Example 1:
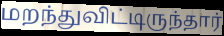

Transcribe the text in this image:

மறந்துவிட்டிருந்தார்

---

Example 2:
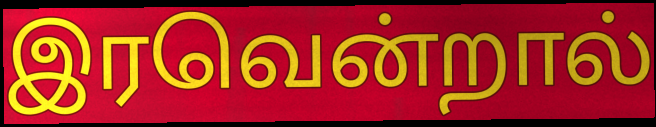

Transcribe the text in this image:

இரவென்றால்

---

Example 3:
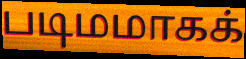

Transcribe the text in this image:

படிமமாகக்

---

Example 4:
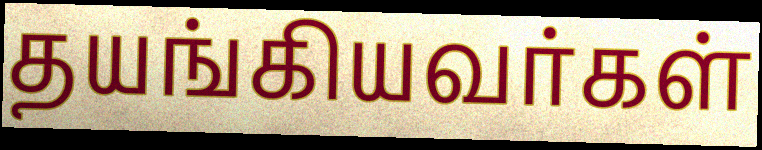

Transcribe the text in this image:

தயங்கியவர்கள்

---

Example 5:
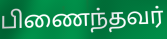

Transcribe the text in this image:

பிணைந்தவர்